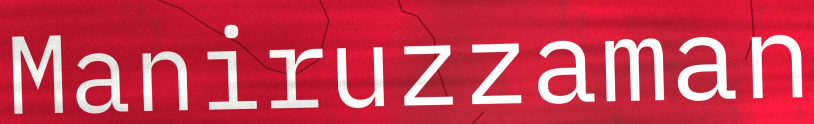
Maniruzzaman